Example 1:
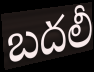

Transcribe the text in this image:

బదలీ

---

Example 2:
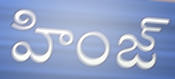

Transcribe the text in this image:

హింజ్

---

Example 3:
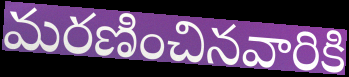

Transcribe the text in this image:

మరణించినవారికి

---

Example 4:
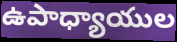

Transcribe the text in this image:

ఉపాధ్యాయుల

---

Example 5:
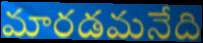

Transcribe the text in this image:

మారడమనేది